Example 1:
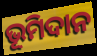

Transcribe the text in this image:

ଭୂମିଦାନ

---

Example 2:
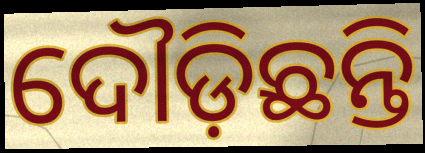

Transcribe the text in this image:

ଦୌଡ଼ିଛନ୍ତି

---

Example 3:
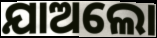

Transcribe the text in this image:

ଯାଅଲୋ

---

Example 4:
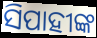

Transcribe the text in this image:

ସିପାହୀଙ୍କ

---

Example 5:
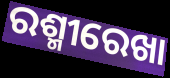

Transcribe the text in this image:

ରଶ୍ମୀରେଖା